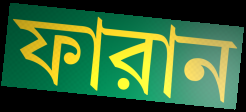
ফারান